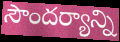
సౌందర్యాన్ని